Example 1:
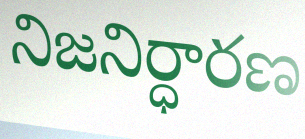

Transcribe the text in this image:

నిజనిర్ధారణ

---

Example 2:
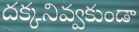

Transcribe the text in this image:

దక్కనివ్వకుండా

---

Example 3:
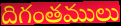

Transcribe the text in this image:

దిగంతములు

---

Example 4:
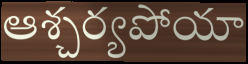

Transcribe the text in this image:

ఆశ్చర్యపోయా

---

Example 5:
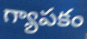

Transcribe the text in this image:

గ్యాపకం